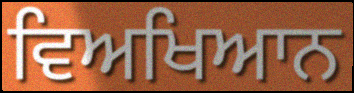
ਵਿਅਖਿਆਨ